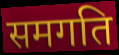
समगति